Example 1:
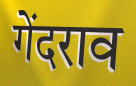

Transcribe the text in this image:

गेंदराव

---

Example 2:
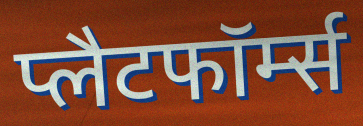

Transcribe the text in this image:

प्लैटफॉर्म्स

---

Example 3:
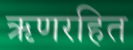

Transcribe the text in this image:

ऋणरहित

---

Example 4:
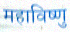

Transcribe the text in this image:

महाविष्णु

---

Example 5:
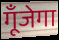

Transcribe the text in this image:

गूँजेगा